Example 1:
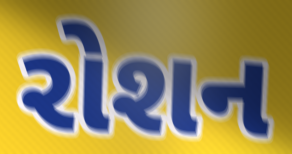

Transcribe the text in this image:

રોશન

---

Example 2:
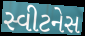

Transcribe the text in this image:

સ્વીટનેસ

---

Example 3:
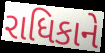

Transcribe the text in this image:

રાધિકાને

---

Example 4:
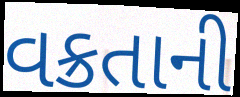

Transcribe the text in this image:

વક્રતાની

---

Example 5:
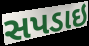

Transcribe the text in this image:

સપડાઇ